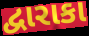
દ્વારાકા